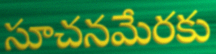
సూచనమేరకు